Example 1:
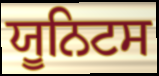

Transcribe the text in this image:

ਯੂਨਿਟਸ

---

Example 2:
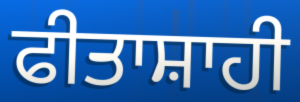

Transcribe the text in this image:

ਫੀਤਾਸ਼ਾਹੀ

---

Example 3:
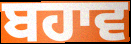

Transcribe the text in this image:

ਬਹਾਵ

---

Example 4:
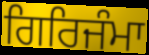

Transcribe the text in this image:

ਗਿਰਿਜੰਮਾ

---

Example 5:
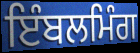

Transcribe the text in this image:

ਇੰਬਲਮਿੰਗ